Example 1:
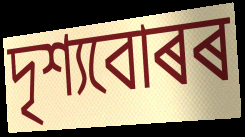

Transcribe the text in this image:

দৃশ্যবোৰৰ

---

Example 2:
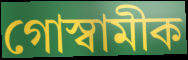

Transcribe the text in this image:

গোস্বামীক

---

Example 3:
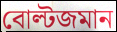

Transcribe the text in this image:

বোল্টজমান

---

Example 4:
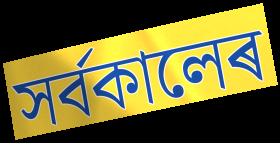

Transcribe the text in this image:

সৰ্বকালেৰ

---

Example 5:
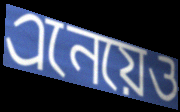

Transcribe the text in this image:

এনেয়েও